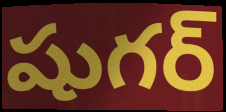
షుగర్